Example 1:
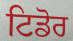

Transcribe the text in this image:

ਟਿਡੋਰ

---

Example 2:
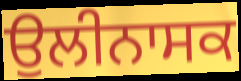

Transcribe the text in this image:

ਉਲੀਨਾਸਕ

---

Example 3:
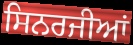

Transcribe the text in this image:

ਸਿਨਰਜੀਆਂ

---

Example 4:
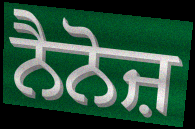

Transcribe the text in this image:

ਨੈਨੋਜ਼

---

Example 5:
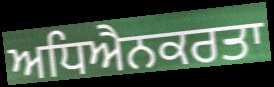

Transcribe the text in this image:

ਅਧਿਐਨਕਰਤਾ